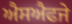
ਐਸਐਫਜੇ